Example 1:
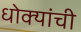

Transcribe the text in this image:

धोक्यांची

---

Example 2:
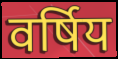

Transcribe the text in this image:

वर्षिय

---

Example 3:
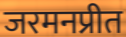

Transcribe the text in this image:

जरमनप्रीत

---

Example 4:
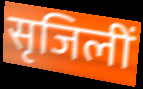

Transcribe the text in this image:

सृजिलीं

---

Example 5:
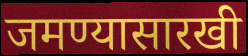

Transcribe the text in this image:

जमण्यासारखी